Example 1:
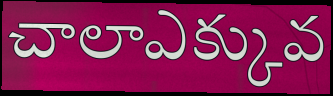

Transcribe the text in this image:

చాలాఎక్కువ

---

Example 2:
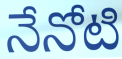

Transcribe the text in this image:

నేనోటి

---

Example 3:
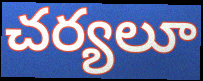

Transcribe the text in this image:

చర్యలూ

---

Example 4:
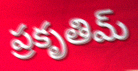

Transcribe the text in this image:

ప్రకృతిమ్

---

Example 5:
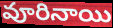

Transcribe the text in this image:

వూరినాయి